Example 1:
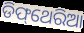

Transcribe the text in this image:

ଡିଫ୍‌ଥେରିଆ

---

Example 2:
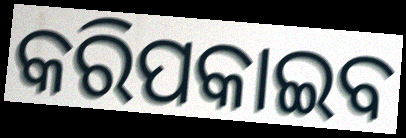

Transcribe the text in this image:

କରିପକାଇବ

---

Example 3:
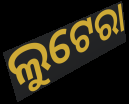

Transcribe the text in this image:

ଲୁଟେରା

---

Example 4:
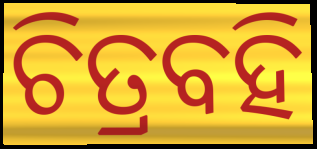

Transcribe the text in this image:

ଚିତ୍ରବହି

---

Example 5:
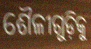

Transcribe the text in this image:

ଶୈଳୀଗୁଡ଼ିକୁ